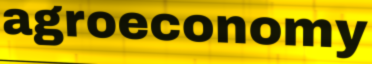
agroeconomy